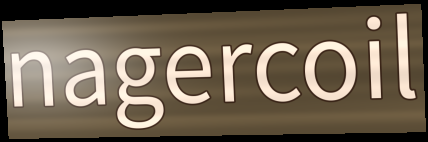
nagercoil